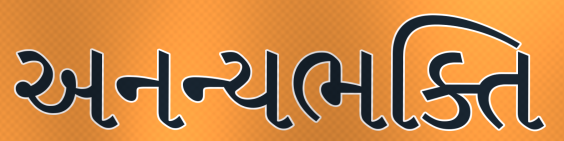
અનન્યભક્તિ